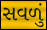
સવળું